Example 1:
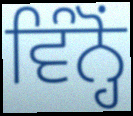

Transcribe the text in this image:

ਵਿੰਨ੍ਹੋਂ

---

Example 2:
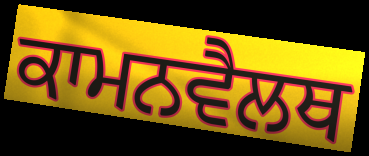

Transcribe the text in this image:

ਕਾਮਨਵੈਲਥ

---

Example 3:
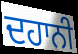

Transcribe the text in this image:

ਦਹਾਨੀ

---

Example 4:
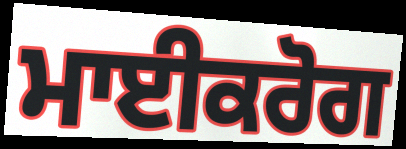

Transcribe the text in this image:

ਮਾਈਕਰੋਗ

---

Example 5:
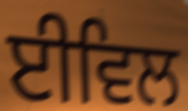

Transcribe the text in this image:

ਈਵਿਲ